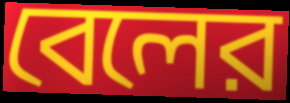
বেলের